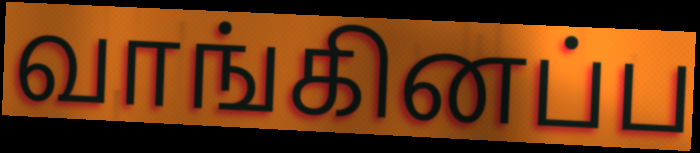
வாங்கினப்ப